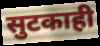
सुटकाही